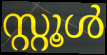
സ്റ്റൂൾ